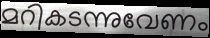
മറികടന്നുവേണം